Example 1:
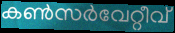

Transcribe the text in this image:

കൺസർവേറ്റീവ്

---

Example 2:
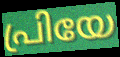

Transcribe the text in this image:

പ്രിയേ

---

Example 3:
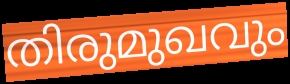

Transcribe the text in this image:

തിരുമുഖവും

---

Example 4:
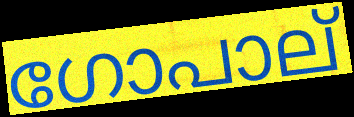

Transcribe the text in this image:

ഗോപാല്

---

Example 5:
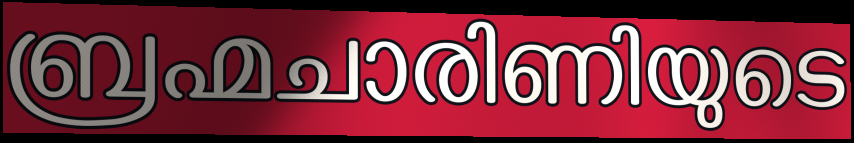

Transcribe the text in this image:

ബ്രഹ്മചാരിണിയുടെ